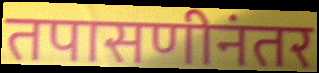
तपासणीनंतर